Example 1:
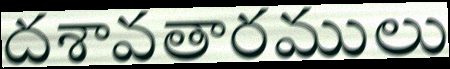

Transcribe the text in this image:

దశావతారములు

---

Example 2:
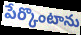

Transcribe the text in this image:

పేర్కొంటాను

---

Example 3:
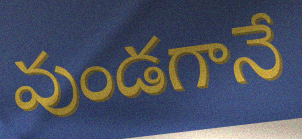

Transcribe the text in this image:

వుండగానే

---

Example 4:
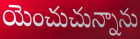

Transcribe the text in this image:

యెంచుచున్నాను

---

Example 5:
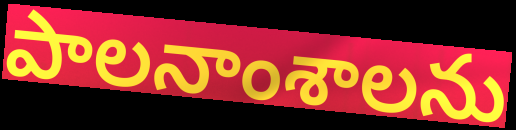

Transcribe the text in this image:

పాలనాంశాలను